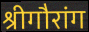
श्रीगौरांग